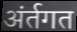
अंर्तगत